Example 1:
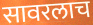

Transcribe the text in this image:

सावरलाच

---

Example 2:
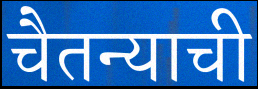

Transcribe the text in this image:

चैतन्याची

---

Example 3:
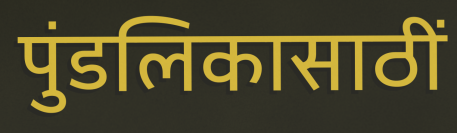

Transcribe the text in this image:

पुंडलिकासाठीं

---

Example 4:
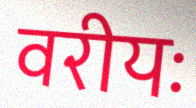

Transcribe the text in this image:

वरीयः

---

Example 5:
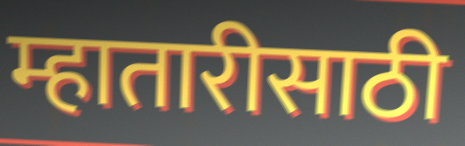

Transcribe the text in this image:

म्हातारीसाठी